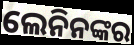
ଲେନିନଙ୍କର